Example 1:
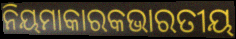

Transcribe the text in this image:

ନିୟମାକାରକଭାରତୀୟ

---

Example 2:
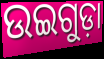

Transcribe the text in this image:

ଉଇଗୁଡ଼ା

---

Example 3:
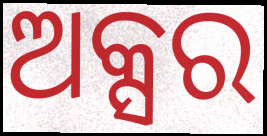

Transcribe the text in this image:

ଅକ୍ସର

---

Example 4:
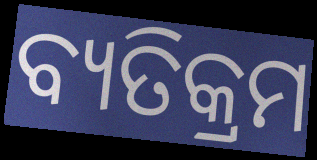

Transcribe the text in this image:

ବ୍ଯତିକ୍ରମ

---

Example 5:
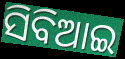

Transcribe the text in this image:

ସିବିଆଇ